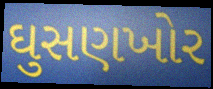
ઘુસણખોર